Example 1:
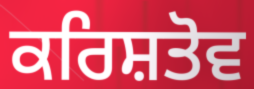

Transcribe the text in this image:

ਕਰਿਸ਼ਤੋਵ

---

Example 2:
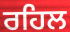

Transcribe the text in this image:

ਰਹਿਲ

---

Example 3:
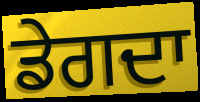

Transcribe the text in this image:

ਡੇਗਦਾ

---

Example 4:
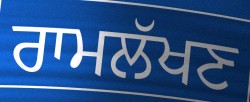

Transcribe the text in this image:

ਰਾਮਲੱਖਣ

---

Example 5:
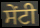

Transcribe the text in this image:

ਸੇਂਟੀ